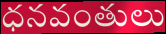
ధనవంతులు